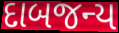
દાબજન્ય